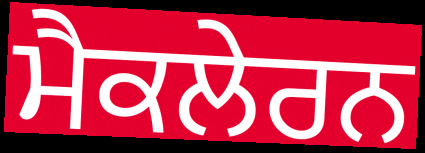
ਮੈਕਲੇਰਨ